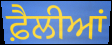
ਫ਼ੈਲੀਆਂ